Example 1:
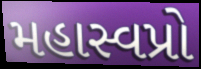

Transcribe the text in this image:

મહાસ્વપ્રો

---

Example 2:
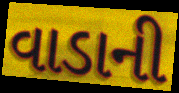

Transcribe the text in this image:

વાડાની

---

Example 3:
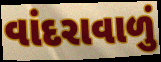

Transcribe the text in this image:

વાંદરાવાળું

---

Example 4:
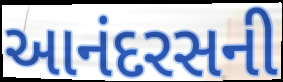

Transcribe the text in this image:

આનંદરસની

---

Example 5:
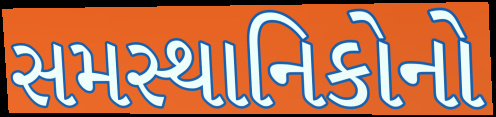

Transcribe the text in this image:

સમસ્થાનિકોનો